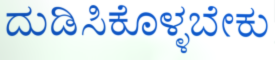
ದುಡಿಸಿಕೊಳ್ಳಬೇಕು